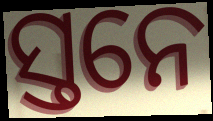
ସ୍ତନେ